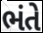
ભંતે